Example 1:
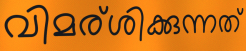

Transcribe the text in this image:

വിമര്ശിക്കുന്നത്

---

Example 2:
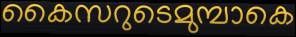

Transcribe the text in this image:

കൈസറുടെമുമ്പാകെ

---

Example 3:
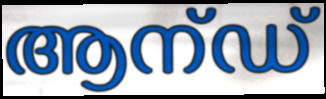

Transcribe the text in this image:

ആന്ഡ്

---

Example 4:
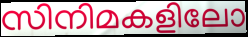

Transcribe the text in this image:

സിനിമകളിലോ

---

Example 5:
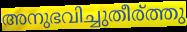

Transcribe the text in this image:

അനുഭവിച്ചുതീര്ത്തു